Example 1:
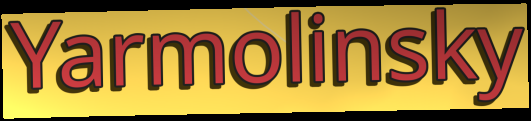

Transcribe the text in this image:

Yarmolinsky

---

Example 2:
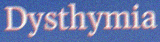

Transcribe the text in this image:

Dysthymia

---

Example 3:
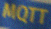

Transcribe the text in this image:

MQTT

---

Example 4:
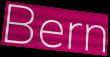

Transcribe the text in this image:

Bern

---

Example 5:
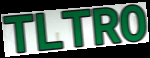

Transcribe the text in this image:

TLTRO